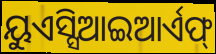
ୟୁଏସ୍ସିଆଇଆର୍ଏଫ୍